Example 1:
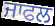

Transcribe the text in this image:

ਜਾਫਲ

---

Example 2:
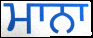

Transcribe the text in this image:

ਮਾਨਾ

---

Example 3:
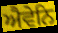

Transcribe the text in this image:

ਐਵੇਨਿ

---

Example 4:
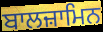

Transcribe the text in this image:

ਬਾਲਜ਼ਾਮਿਨ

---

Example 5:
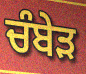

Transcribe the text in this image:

ਚੰਬੇੜ